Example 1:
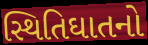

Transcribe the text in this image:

સ્થિતિઘાતનો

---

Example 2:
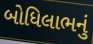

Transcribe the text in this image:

બોધિલાભનું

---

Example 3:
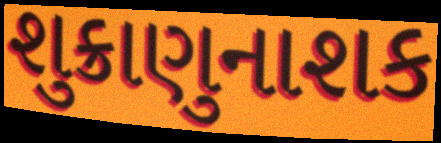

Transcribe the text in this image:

શુક્રાણુનાશક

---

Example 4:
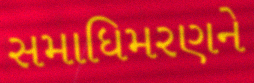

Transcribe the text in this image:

સમાધિમરણને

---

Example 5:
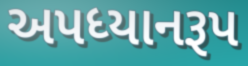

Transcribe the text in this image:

અપધ્યાનરૂપ